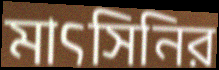
মাৎসিনির